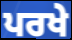
ਪਰਖੇ